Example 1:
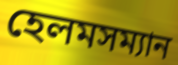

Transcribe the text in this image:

হেলমসম্যান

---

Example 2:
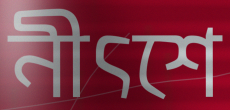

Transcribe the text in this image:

নীৎশে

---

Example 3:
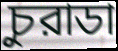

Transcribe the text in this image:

চুরাডা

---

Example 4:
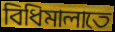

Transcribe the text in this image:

বিধিমালাতে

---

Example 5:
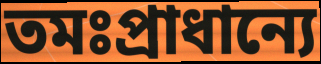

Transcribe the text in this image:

তমঃপ্রাধান্যে